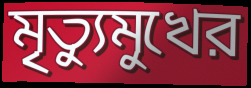
মৃত্যুমুখের